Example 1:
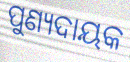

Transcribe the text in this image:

ପୁଣ୍ୟଦାୟକ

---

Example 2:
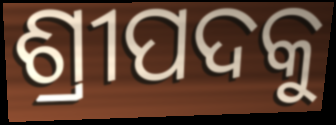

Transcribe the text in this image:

ଶ୍ରୀପଦକୁ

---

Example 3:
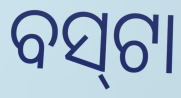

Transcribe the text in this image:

ବସ୍‍ଟା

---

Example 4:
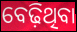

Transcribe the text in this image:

ବେଢ଼ିଥିବା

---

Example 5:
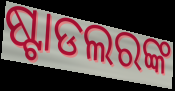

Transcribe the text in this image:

ଷ୍ଟାଡଲରଙ୍କ